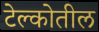
टेल्कोतील